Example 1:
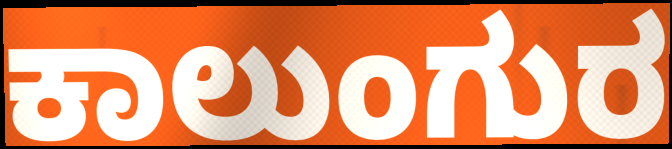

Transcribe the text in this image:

ಕಾಲುಂಗುರ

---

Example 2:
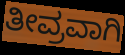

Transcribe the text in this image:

ತೀವ್ರವಾಗಿ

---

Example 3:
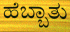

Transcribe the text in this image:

ಹೆಬ್ಬಾತು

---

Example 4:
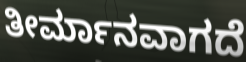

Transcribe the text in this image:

ತೀರ್ಮಾನವಾಗದೆ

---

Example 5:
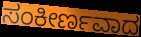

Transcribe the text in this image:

ಸಂಕೀರ್ಣವಾದ